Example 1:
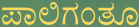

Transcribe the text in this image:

ಪಾಲಿಗಂತೂ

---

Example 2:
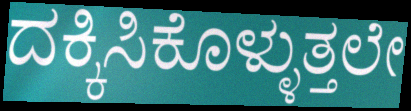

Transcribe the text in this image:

ದಕ್ಕಿಸಿಕೊಳ್ಳುತ್ತಲೇ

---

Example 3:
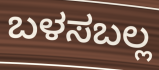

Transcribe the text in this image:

ಬಳಸಬಲ್ಲ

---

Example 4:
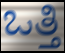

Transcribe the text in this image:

ಒತ್ತಿ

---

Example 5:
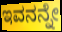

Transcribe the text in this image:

ಇವನನ್ನೇ